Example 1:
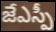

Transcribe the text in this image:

జేఎస్పీ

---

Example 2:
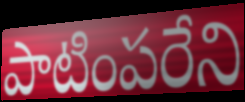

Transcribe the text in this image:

పాటింపరేని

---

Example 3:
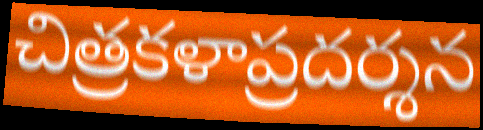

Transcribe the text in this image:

చిత్రకళాప్రదర్శన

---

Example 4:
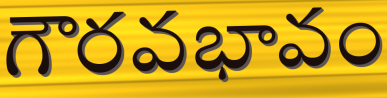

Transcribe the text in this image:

గౌరవభావం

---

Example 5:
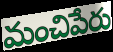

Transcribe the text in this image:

మంచిపేరు